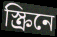
স্ক্রিনে